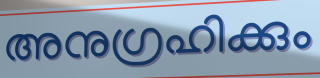
അനുഗ്രഹിക്കും